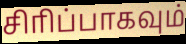
சிரிப்பாகவும்